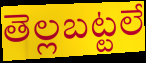
తెల్లబట్టలే